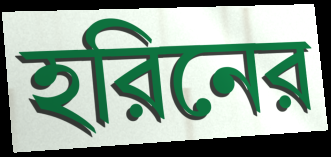
হরিনের